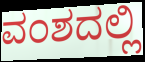
ವಂಶದಲ್ಲಿ